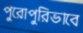
পুরোপুরিভাবে